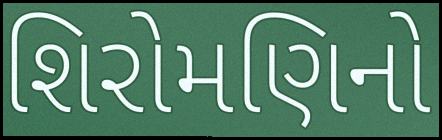
શિરોમણિનો